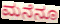
ಮನೆನೂ